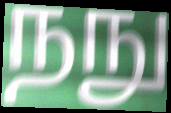
நநு